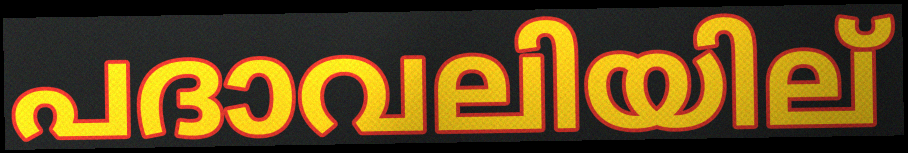
പദാവലിയില്